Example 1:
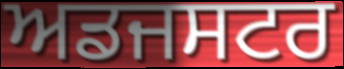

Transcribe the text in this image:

ਅਡਜਸਟਰ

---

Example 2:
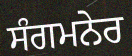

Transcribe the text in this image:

ਸੰਗਮਨੇਰ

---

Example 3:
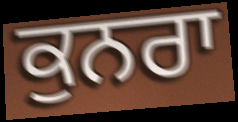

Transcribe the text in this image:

ਕੁਨਰਾ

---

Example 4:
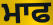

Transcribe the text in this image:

ਮਾਫ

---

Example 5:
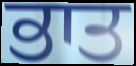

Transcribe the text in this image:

ਭਾਤ